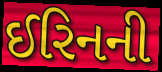
ઈરિનની